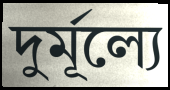
দুর্মূল্যে